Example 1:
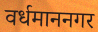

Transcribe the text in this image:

वर्धमाननगर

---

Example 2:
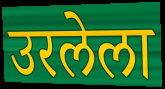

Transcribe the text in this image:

उरलेला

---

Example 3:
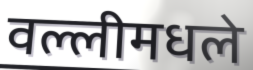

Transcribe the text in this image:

वल्लीमधले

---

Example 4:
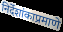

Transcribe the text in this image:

निर्देशांकाप्रमाणे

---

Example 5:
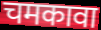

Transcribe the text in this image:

चमकावा